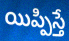
యిప్పిస్తే